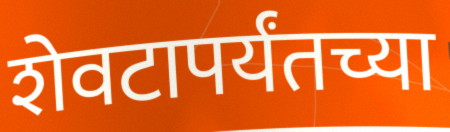
शेवटापर्यंतच्या